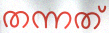
തന്നത്